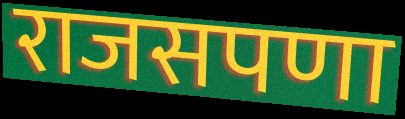
राजसपणा